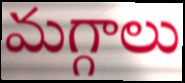
మగ్గాలు